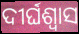
ଦୀର୍ଘଶ୍ୱାସ